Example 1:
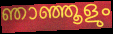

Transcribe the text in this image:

ഞാഞ്ഞൂളും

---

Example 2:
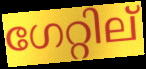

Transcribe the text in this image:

ഗേറ്റില്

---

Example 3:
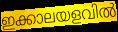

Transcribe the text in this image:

ഇക്കാലയളവിൽ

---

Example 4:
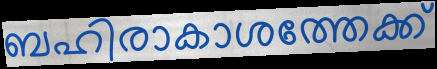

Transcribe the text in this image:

ബഹിരാകാശത്തേക്ക്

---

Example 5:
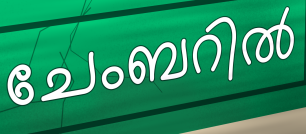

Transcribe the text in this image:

ചേംബറിൽ